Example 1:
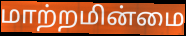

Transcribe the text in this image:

மாற்றமின்மை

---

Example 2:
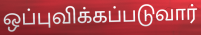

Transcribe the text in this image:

ஒப்புவிக்கப்படுவார்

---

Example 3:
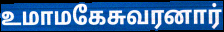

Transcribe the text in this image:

உமாமகேசுவரனார்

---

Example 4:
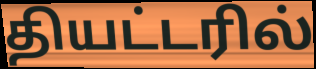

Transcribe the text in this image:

தியட்டரில்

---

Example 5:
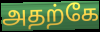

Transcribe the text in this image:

அதற்கே